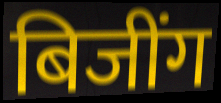
बिजींग